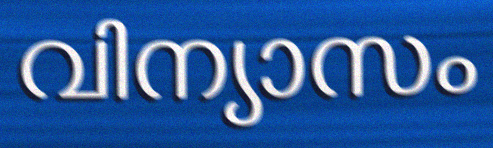
വിന്യാസം